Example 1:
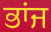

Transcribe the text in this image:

ਭਾਂਜ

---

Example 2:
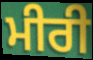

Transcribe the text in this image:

ਮੀਰੀ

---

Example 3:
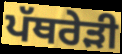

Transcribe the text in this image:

ਪੱਥਰੇੜੀ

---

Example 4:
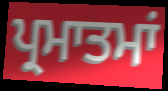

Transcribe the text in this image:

ਪ੍ਰਮਾਤਮਾਂ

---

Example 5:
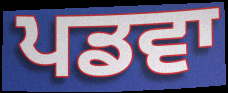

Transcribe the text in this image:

ਪਡਵਾ